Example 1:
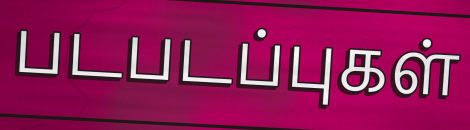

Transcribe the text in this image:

படபடப்புகள்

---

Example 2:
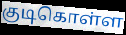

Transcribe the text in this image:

குடிகொள்ள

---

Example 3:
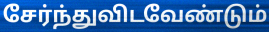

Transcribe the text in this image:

சேர்ந்துவிடவேண்டும்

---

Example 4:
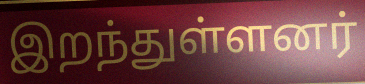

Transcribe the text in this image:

இறந்துள்ளனர்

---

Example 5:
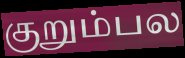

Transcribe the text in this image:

குறும்பல